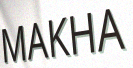
MAKHA